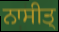
ਨਾਸੀਤ੍